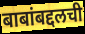
बाबांबद्दलची